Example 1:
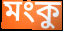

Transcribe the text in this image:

মংকু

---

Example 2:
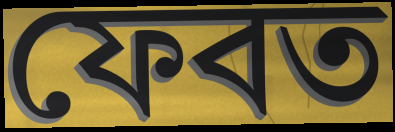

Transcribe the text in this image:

ফেবত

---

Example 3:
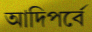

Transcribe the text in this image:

আদিপর্বে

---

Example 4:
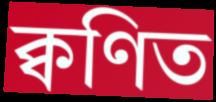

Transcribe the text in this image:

ক্বণিত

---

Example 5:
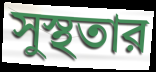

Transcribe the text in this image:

সুস্থতার